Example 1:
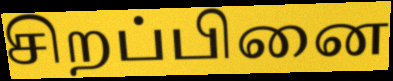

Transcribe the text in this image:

சிறப்பினை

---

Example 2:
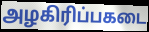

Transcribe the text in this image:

அழகிரிப்பகடை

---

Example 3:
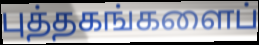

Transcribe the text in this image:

புத்தகங்களைப்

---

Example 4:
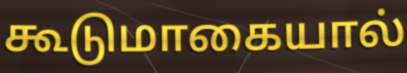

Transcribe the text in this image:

கூடுமாகையால்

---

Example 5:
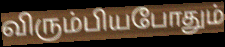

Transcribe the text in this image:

விரும்பியபோதும்